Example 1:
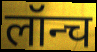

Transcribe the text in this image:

लॉन्‍च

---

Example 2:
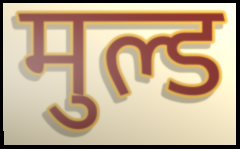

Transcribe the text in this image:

मुल्ड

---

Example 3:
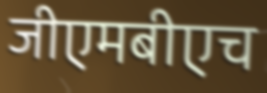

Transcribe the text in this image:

जीएमबीएच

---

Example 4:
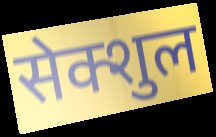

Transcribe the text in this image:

सेक्शुल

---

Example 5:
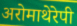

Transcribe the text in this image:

अरोमाथेरेपी